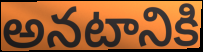
అనటానికి